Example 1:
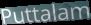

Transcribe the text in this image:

Puttalam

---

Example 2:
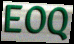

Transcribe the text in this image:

EOQ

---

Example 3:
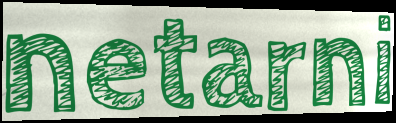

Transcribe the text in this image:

netarni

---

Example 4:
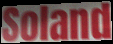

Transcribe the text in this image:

Soland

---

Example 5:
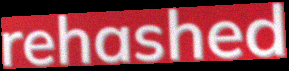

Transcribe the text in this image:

rehashed